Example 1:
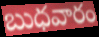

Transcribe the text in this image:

బుధవారం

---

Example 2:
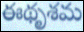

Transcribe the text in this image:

ఈథృశమ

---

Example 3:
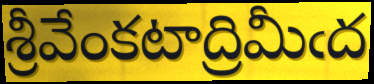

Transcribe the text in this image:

శ్రీవేంకటాద్రిమీఁద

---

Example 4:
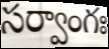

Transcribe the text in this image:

సర్వాంగః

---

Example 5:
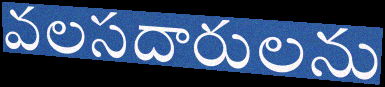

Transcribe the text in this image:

వలసదారులను